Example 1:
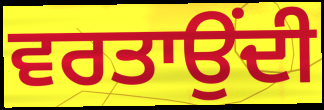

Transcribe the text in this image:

ਵਰਤਾਉਂਦੀ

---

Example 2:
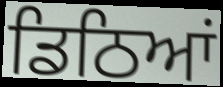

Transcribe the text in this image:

ਡਿਠਿਆਂ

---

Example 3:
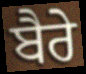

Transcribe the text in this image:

ਬੈਰੇ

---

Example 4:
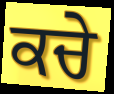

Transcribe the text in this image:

ਕਚੇ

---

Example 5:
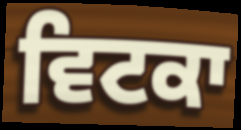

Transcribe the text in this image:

ਵਿਟਕਾ